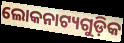
ଲୋକନାଟ୍ୟଗୁଡ଼ିକ